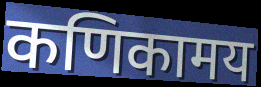
कणिकामय